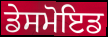
ਡੇਸਮੋਇਡ